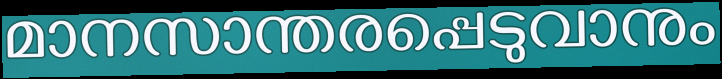
മാനസാന്തരപ്പെടുവാനും